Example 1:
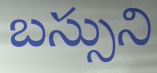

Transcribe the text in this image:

బస్సుని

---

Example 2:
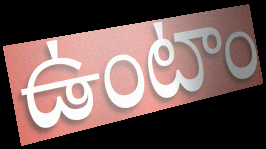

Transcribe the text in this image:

ఉంటాం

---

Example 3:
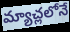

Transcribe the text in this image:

మ్యాచ్లలోనే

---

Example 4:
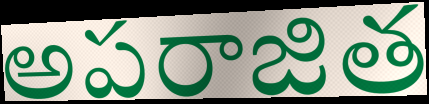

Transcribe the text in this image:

అపరాజిత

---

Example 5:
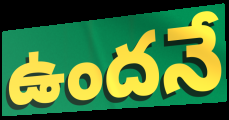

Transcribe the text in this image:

ఉందనే